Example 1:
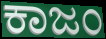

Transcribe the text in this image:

ಕಾಜಂ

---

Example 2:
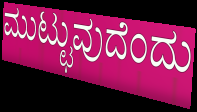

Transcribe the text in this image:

ಮುಟ್ಟುವುದೆಂದು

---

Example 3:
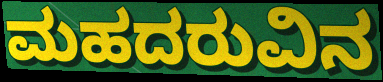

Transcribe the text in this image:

ಮಹದರುವಿನ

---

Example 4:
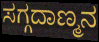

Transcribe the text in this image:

ಸಗ್ಗದಾಣ್ಮನ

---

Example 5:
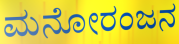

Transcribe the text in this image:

ಮನೋರಂಜನ